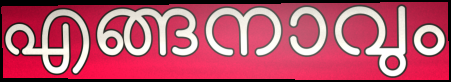
എങ്ങനാവും